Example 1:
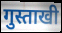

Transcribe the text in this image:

गुस्ताखी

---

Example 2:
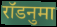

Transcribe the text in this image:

रॉडनुमा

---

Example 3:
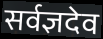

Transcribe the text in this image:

सर्वज्ञदेव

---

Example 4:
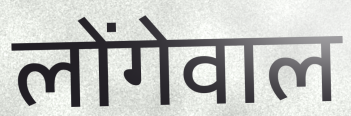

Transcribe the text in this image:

लोंगेवाल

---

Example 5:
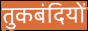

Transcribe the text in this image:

तुकबंदियों